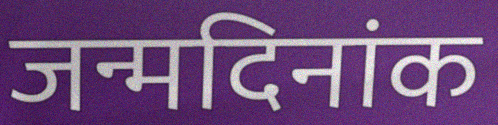
जन्मदिनांक